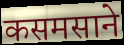
कसमसाने